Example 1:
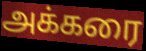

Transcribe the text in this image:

அக்கரை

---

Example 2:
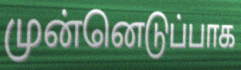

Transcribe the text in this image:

முன்னெடுப்பாக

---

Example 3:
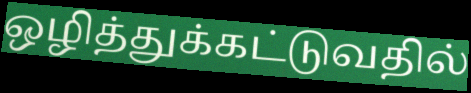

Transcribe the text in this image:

ஒழித்துக்கட்டுவதில்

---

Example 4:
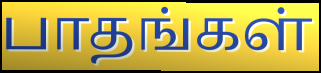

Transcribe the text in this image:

பாதங்கள்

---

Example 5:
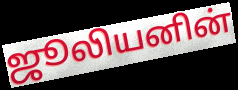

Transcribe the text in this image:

ஜூலியனின்